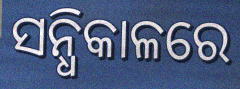
ସନ୍ଧିକାଳରେ